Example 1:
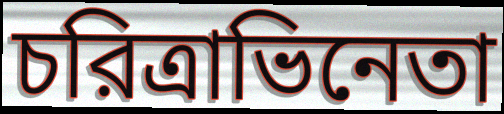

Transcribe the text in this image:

চরিত্রাভিনেতা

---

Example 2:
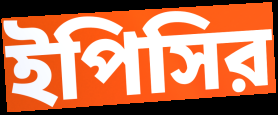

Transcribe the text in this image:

ইপিসির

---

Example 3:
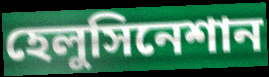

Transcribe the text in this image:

হেলুসিনেশান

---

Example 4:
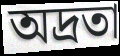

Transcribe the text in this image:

অদ্রতা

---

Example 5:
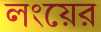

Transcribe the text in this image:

লংয়ের